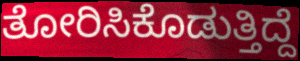
ತೋರಿಸಿಕೊಡುತ್ತಿದ್ದೆ